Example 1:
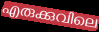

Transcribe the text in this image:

എരുക്കുവിലെ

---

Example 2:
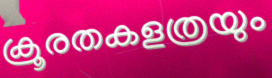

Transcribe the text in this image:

ക്രൂരതകളത്രയും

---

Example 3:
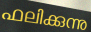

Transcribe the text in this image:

ഫലിക്കുന്നു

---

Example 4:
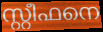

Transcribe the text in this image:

സ്റ്റീഫനെ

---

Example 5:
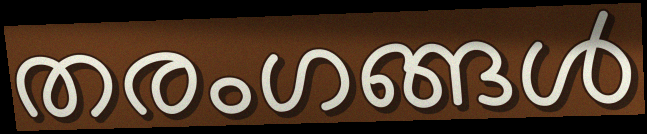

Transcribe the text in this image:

തരംഗങ്ങൾ